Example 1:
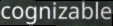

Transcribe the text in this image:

cognizable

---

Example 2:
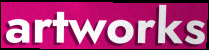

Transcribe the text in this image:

artworks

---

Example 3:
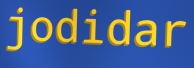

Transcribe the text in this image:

jodidar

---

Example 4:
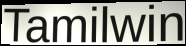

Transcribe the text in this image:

Tamilwin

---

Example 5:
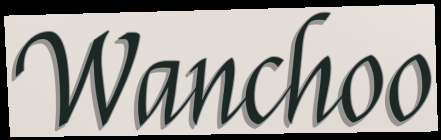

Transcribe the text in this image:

Wanchoo